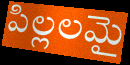
పిల్లలమై